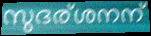
സുദര്ശനന്